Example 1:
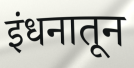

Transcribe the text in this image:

इंधनातून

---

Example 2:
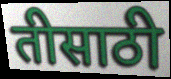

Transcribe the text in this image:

तीसाठी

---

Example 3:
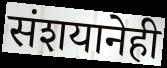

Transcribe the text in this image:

संशयानेही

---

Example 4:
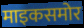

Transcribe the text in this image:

माइकसमोर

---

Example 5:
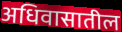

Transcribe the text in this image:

अधिवासातील